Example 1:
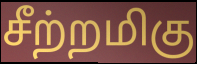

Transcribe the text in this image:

சீற்றமிகு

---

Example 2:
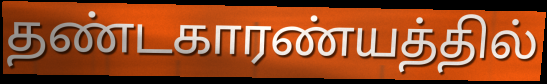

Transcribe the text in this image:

தண்டகாரண்யத்தில்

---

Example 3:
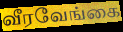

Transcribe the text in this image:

வீரவேங்கை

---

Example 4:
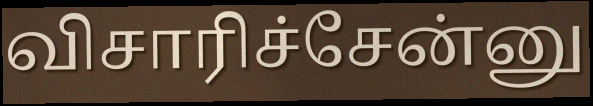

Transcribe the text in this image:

விசாரிச்சேன்னு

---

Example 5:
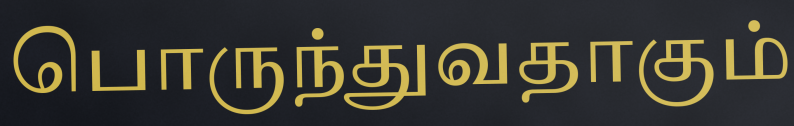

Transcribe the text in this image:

பொருந்துவதாகும்